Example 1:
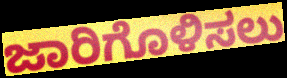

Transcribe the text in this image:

ಜಾರಿಗೊಳಿಸಲು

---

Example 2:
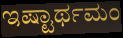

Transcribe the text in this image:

ಇಷ್ಟಾರ್ಥಮಂ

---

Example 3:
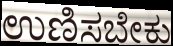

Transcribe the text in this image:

ಉಣಿಸಬೇಕು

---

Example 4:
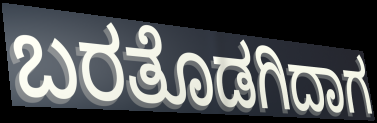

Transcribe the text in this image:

ಬರತೊಡಗಿದಾಗ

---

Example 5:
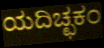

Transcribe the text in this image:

ಯದಿಚ್ಛಕಂ